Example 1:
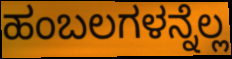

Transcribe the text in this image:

ಹಂಬಲಗಳನ್ನೆಲ್ಲ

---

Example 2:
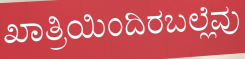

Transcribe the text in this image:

ಖಾತ್ರಿಯಿಂದಿರಬಲ್ಲೆವು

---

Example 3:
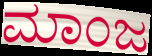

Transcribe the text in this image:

ಮಾಂಜ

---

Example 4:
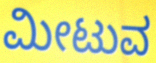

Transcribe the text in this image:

ಮೀಟುವ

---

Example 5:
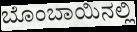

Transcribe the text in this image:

ಬೊಂಬಾಯಿನಲ್ಲಿ